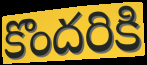
కొందరికి